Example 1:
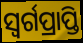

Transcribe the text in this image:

ସ୍ଵର୍ଗପ୍ରାପ୍ତି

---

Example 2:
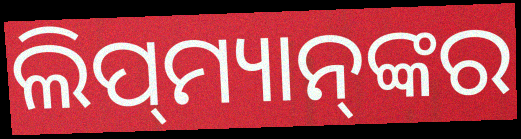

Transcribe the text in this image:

ଲିପ୍‌ମ୍ୟାନ୍‌ଙ୍କର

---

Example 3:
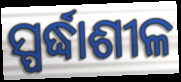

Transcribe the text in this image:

ସ୍ପର୍ଦ୍ଧାଶୀଳ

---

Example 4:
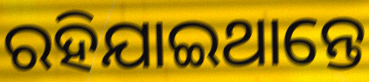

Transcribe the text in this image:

ରହିଯାଇଥାନ୍ତେ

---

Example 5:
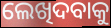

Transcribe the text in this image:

ଲେଖିଦବାକୁ